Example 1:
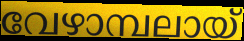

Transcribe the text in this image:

വേഴാമ്പലായ്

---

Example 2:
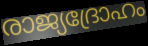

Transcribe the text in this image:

രാജ്യദ്രോഹം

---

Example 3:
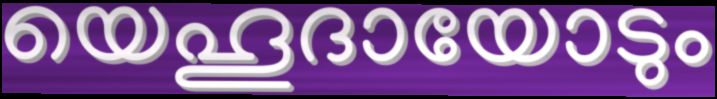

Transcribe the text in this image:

യെഹൂദായോടും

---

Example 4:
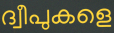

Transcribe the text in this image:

ദ്വീപുകളെ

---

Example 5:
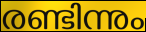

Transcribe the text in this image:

രണ്ടിന്നും